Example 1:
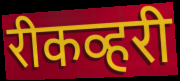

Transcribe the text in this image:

रीकव्हरी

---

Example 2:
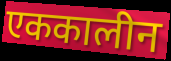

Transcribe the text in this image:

एककालीन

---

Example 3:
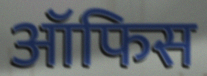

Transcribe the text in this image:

ऑफिस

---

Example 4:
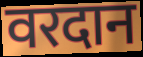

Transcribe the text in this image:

वरदान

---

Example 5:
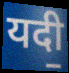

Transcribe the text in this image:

यदी॒